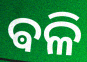
ଵଳି